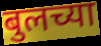
बुलच्या